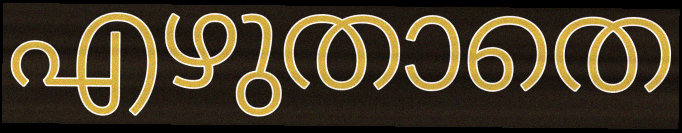
എഴുതാതെ